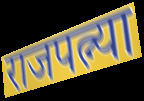
राजपत्न्या